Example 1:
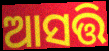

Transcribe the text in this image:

ଆସତ୍ତି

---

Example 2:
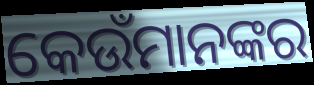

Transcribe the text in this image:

କେଉଁମାନଙ୍କର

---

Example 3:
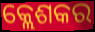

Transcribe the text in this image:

କ୍ଲେଶକର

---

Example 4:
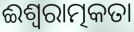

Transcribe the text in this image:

ଈଶ୍ଵରାତ୍ମକତା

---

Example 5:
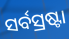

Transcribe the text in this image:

ସର୍ବସ୍ରଷ୍ଟା